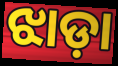
ଝାଡ଼ା